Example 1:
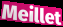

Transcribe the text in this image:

Meillet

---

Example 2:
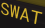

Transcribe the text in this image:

SWAT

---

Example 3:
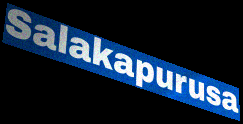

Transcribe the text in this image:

Salakapurusa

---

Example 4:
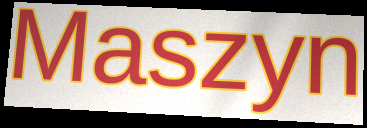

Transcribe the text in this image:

Maszyn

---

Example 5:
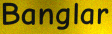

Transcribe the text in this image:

Banglar